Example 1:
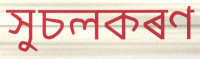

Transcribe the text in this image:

সুচলকৰণ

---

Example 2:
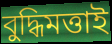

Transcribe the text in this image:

বুদ্ধিমত্তাই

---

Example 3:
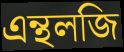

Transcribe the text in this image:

এন্থলজি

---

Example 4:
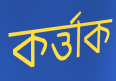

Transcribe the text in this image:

কৰ্ত্তাক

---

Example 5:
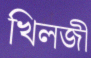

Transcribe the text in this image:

খিলজী